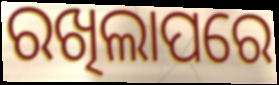
ରଖିଲାପରେ